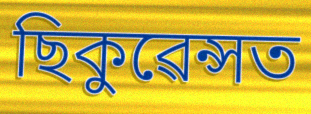
ছিকুৱেন্সত